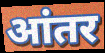
आंतर